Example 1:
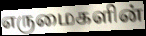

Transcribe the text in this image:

எருமைகளின்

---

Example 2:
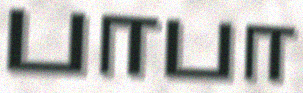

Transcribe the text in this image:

பாபா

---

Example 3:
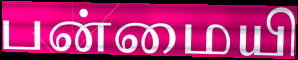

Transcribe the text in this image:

பன்மையி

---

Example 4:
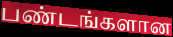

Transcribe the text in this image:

பண்டங்களான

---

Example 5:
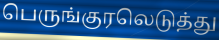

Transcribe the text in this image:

பெருங்குரலெடுத்து